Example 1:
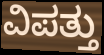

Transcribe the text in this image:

ವಿಪತ್ತು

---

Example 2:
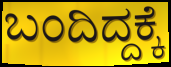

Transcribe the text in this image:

ಬಂದಿದ್ದಕ್ಕೆ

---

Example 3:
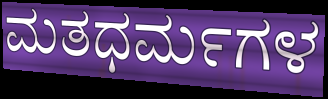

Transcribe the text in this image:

ಮತಧರ್ಮಗಳ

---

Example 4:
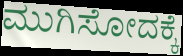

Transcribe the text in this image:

ಮುಗಿಸೋದಕ್ಕೆ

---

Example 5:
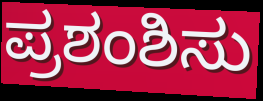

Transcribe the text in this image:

ಪ್ರಶಂಶಿಸು